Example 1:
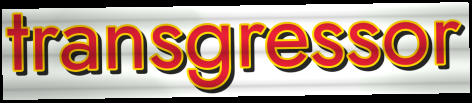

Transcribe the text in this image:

transgressor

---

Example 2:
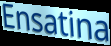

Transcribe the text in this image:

Ensatina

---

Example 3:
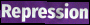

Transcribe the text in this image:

Repression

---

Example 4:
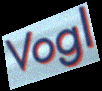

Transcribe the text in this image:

Vogl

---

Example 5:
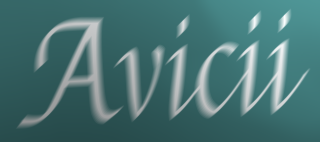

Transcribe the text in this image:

Avicii